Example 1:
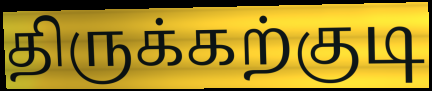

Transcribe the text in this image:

திருக்கற்குடி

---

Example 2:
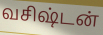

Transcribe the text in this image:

வசிஷ்டன்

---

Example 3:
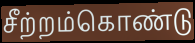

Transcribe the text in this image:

சீற்றம்கொண்டு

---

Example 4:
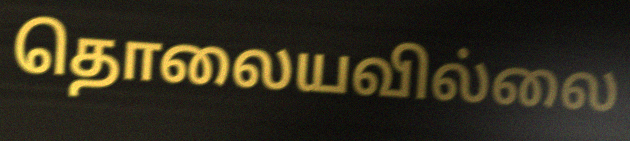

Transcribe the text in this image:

தொலையவில்லை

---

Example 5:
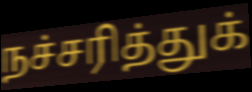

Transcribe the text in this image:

நச்சரித்துக்